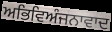
ਅਭਿਵਿਅੰਜਨਾਵਾਦ